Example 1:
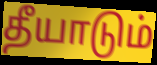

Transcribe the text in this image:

தீயாடும்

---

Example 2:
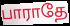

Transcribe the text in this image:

பாராதே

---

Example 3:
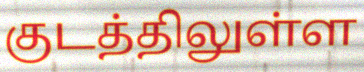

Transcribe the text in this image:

குடத்திலுள்ள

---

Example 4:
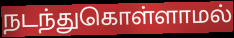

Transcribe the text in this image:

நடந்துகொள்ளாமல்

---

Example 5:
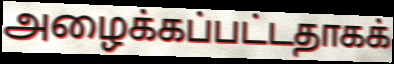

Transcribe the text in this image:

அழைக்கப்பட்டதாகக்